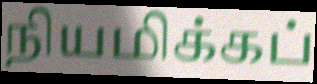
நியமிக்கப்